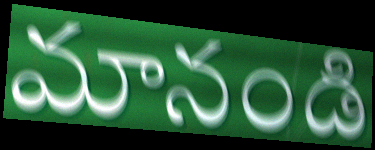
మానండి